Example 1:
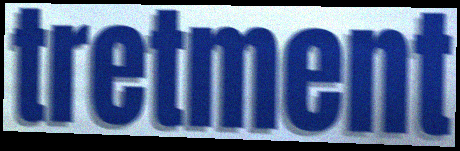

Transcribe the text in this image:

tretment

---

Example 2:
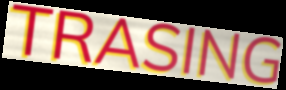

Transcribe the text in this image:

TRASING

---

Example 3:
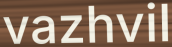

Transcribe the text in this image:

vazhvil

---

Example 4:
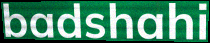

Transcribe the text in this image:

badshahi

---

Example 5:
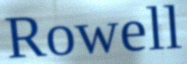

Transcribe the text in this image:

Rowell